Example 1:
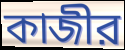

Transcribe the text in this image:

কাজীর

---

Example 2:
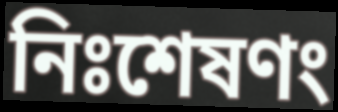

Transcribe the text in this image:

নিঃশেষণং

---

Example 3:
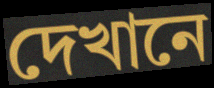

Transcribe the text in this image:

দেখানে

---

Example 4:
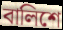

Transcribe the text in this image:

বালিশে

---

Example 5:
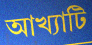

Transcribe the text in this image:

আখ্যাটি